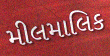
મીલમાલિક